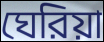
ঘেরিয়া